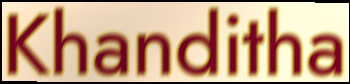
Khanditha